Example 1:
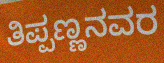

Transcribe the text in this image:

ತಿಪ್ಪಣ್ಣನವರ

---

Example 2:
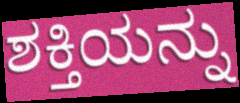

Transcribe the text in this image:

ಶಕ್ತಿಯನ್ನು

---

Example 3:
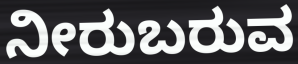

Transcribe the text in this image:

ನೀರುಬರುವ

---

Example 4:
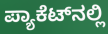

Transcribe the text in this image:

ಪ್ಯಾಕೆಟ್‍ನಲ್ಲಿ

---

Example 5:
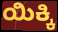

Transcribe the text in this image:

ಯಿಕ್ಕಿ